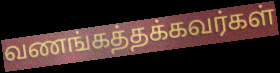
வணங்கத்தக்கவர்கள்